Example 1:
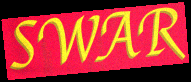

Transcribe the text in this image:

SWAR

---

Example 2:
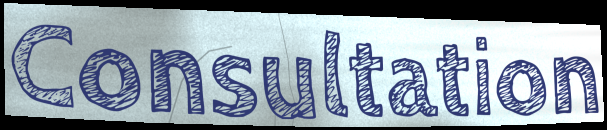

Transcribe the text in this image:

Consultation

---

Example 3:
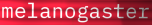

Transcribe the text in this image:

melanogaster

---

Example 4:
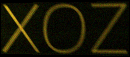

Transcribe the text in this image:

XOZ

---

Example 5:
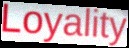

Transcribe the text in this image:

Loyality